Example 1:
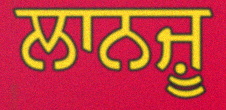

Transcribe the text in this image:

ਲਾਨਜ਼ੂ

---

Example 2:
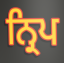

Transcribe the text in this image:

ਨ੍ਰਿਪ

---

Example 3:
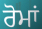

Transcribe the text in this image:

ਰੋਮਾਂ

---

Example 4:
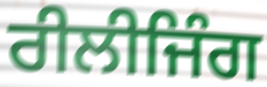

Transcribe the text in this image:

ਰੀਲੀਜਿੰਗ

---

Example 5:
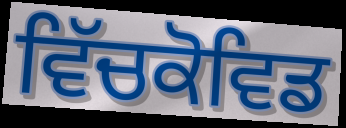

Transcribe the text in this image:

ਵਿੱਚਕੋਵਿਡ